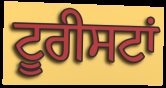
ਟੂਰੀਸਟਾਂ